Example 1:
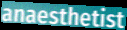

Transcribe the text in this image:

anaesthetist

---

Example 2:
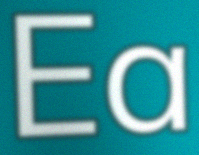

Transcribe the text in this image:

Ea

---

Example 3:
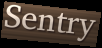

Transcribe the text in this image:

Sentry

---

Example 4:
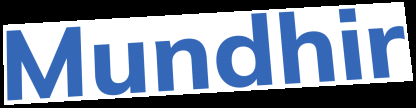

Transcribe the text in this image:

Mundhir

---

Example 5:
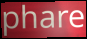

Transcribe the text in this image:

phare